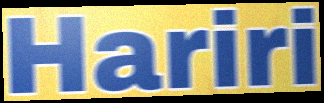
Hariri